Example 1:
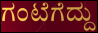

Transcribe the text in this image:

ಗಂಟೆಗೆದ್ದು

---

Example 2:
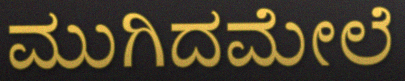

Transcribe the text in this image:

ಮುಗಿದಮೇಲೆ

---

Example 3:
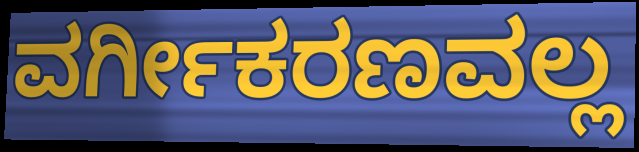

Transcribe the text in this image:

ವರ್ಗೀಕರಣವಲ್ಲ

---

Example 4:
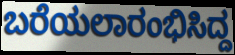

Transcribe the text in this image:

ಬರೆಯಲಾರಂಭಿಸಿದ್ದ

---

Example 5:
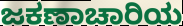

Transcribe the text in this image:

ಜಕಣಾಚಾರಿಯ